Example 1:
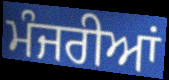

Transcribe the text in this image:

ਮੰਜਰੀਆਂ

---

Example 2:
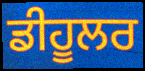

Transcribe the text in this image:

ਡੀਹੂਲਰ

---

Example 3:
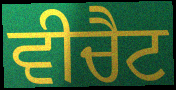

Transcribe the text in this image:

ਵੀਚੈਟ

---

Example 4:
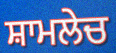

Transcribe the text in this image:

ਸ਼ਾਮਲੇਚ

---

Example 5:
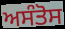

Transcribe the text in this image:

ਅਸੰਤੋਸ